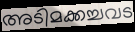
അടിമക്കച്ചവട